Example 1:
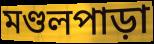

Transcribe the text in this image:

মণ্ডলপাড়া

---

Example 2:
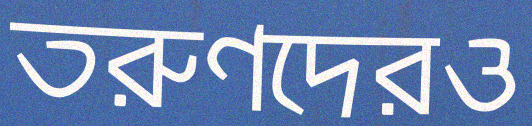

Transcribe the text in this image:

তরুণদেরও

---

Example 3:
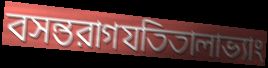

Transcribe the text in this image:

বসন্তরাগযতিতালাভ্যাং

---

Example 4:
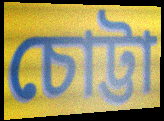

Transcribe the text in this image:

চোট্টা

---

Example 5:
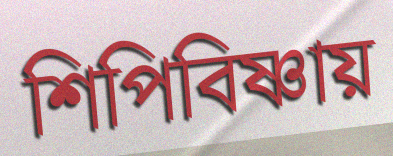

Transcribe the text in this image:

শিপিবিষ্ণায়